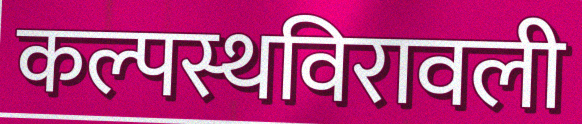
कल्पस्थविरावली